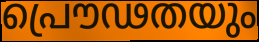
പ്രൌഢതയും